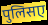
पुलिसए